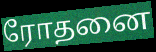
ரோதனை